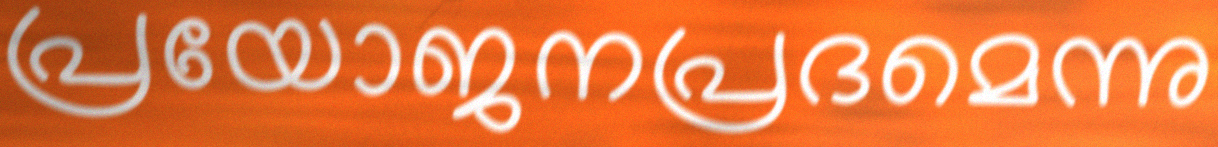
പ്രയോജനപ്രദമെന്നു